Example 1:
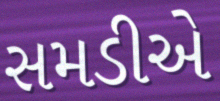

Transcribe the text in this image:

સમડીએ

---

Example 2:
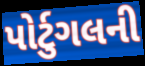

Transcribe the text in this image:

પોર્ટુગલની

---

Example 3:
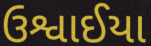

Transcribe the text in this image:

ઉશ્વાઈયા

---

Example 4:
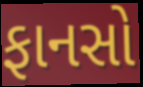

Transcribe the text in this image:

ફાનસો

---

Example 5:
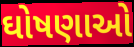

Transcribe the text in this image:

ઘોષણાઓ